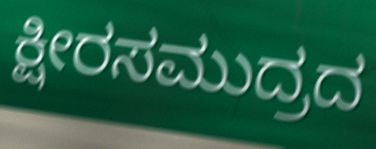
ಕ್ಷೀರಸಮುದ್ರದ